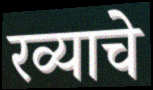
रव्याचे